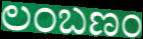
ಲಂಬಣಂ